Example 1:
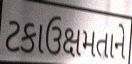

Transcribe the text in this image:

ટકાઉક્ષમતાને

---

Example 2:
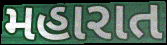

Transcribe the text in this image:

મહારાત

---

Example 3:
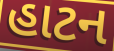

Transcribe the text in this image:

હાટન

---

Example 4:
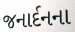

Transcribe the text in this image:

જનાર્દનના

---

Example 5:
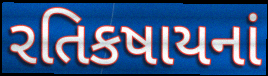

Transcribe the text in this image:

રતિકષાયનાં